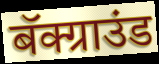
बॅक्ग्राउंड